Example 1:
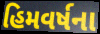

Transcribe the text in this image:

હિમવર્ષના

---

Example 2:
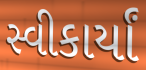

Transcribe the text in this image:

સ્વીકાર્યાં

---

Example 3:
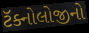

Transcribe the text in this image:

ટૅક્નોલોજીનો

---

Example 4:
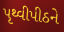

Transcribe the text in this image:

પૃથ્વીપીઠને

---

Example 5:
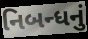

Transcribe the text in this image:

નિબન્ધનું